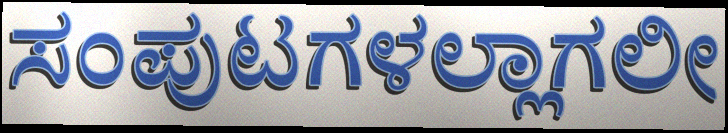
ಸಂಪುಟಗಳಲ್ಲಾಗಲೀ